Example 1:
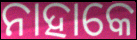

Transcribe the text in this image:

ନାହାକେ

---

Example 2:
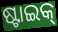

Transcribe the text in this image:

ଷ୍ଟାଇକ୍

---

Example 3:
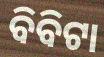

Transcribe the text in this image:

ବିବିଟା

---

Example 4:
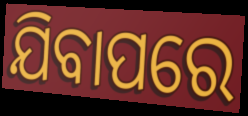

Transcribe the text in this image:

ଯିବାପରେ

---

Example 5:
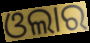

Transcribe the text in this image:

ଓଲାର